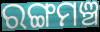
ରଙ୍ଗମଞ୍ଚ